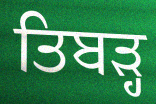
ਤਿਬੜ੍ਹ